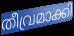
തീവ്രമാക്കി